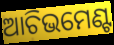
ଆଚିଭମେଣ୍ଟ